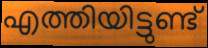
എത്തിയിട്ടുണ്ട്